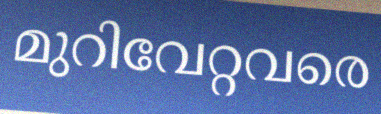
മുറിവേറ്റവരെ